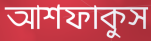
আশফাকুস